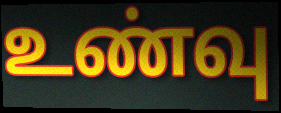
உண்வு